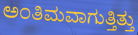
ಅಂತಿಮವಾಗುತ್ತಿತ್ತು